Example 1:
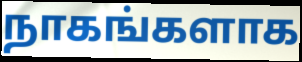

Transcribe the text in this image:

நாகங்களாக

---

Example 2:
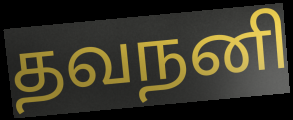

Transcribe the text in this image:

தவநனி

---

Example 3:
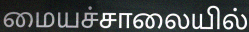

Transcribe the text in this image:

மையச்சாலையில்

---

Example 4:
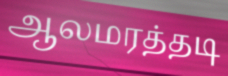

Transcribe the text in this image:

ஆலமரத்தடி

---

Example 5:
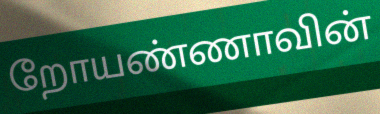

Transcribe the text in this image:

றோயண்ணாவின்